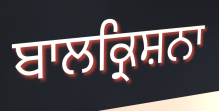
ਬਾਲਕ੍ਰਿਸ਼ਨਾ